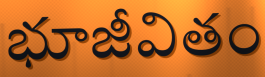
భూజీవితం